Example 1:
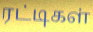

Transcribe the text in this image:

ரட்டிகள்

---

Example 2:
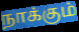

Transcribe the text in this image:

நாக்கும்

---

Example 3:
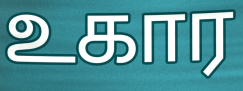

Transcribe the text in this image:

உகார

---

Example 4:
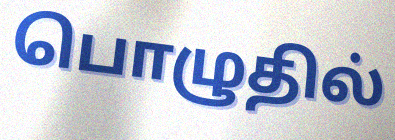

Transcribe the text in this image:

பொழுதில்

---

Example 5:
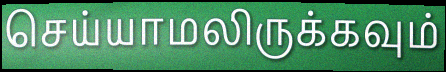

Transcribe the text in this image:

செய்யாமலிருக்கவும்